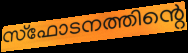
സ്ഫോടനത്തിന്റെ